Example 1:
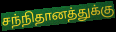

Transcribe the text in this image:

சந்நிதானத்துக்கு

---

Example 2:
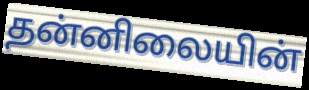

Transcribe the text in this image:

தன்னிலையின்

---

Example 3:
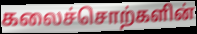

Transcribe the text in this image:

கலைச்சொற்களின்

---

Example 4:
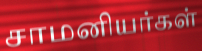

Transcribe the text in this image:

சாமனியர்கள்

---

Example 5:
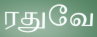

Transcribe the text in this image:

ரதுவே